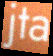
jta